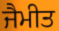
ਜੈਮੀਤ